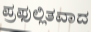
ಪ್ರಫುಲ್ಲಿತವಾದ